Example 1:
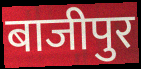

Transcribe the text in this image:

बाजीपुर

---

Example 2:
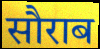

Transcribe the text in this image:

सौराब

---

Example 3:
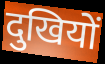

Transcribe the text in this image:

दुखियों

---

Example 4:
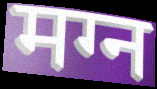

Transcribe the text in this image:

मग्‍न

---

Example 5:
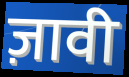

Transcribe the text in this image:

ज़ावी